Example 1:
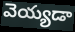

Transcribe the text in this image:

వెయ్యడా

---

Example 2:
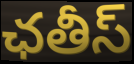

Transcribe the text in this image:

ఛతీస్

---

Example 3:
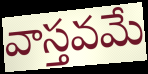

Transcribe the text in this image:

వాస్తవమే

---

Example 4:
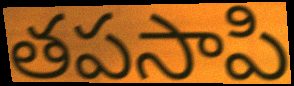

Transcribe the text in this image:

తపసాపి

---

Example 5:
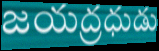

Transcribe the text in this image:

జయద్రధుడు